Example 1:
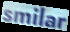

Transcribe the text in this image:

smilar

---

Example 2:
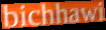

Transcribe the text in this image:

bichhawi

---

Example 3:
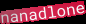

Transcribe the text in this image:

nanadlone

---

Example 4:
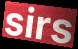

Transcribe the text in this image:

sirs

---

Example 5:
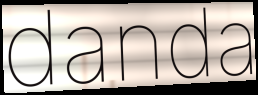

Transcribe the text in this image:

danda